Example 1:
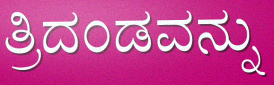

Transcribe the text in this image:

ತ್ರಿದಂಡವನ್ನು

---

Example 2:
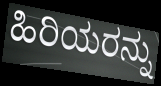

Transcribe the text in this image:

ಹಿರಿಯರನ್ನು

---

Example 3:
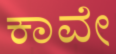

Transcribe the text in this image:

ಕಾವೇ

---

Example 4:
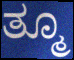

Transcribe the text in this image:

ತ್ಮೂ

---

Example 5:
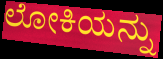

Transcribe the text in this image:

ಲೋಕಿಯನ್ನು